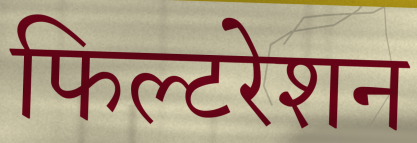
फिल्टरेशन